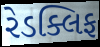
રેડક્લિફ